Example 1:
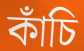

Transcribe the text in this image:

কাঁচি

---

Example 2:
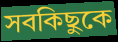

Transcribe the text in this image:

সবকিছুকে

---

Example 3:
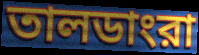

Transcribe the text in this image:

তালডাংরা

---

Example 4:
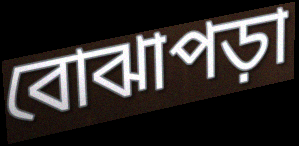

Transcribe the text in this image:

বোঝাপড়া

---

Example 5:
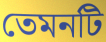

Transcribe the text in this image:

তেমনটি